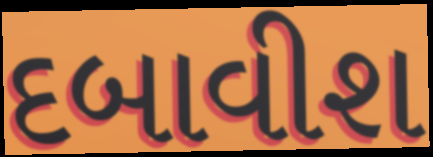
દબાવીશ